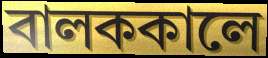
বালককালে